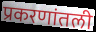
प्रकरणांतली